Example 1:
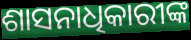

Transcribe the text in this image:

ଶାସନାଧିକାରୀଙ୍କ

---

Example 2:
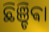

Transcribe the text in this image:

ଛିଞ୍ଚିଵା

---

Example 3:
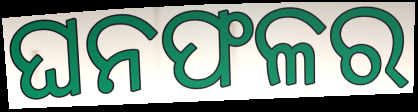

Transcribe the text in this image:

ଘନଫଳର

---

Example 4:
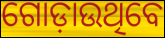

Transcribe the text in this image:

ଗୋଡ଼ାଉଥିବେ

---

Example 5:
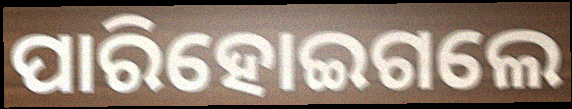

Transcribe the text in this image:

ପାରିହୋଇଗଲେ